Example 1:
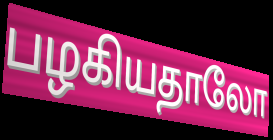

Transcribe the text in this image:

பழகியதாலோ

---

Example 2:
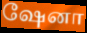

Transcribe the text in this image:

ஷேனா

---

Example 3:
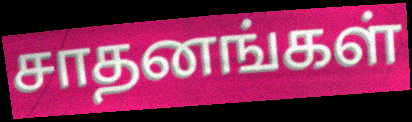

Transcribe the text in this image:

சாதனங்கள்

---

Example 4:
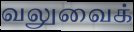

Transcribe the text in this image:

வலுவைக்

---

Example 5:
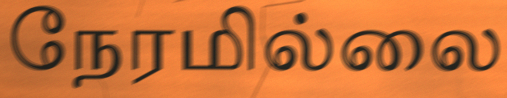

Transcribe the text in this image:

நேரமில்லை